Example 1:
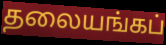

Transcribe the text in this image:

தலையங்கப்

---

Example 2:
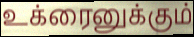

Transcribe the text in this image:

உக்ரைனுக்கும்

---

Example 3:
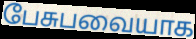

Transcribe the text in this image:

பேசுபவையாக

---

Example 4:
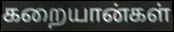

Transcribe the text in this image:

கறையான்கள்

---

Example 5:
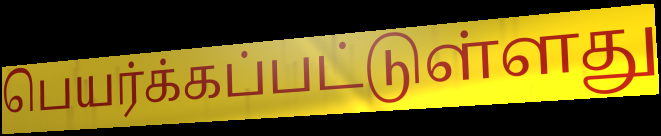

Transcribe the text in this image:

பெயர்க்கப்பட்டுள்ளது